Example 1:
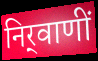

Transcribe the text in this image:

निर्वाणीं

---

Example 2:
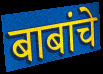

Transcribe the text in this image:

बाबांचे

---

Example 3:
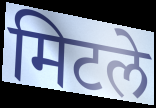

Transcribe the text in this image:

मिटले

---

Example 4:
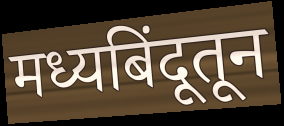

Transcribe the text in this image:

मध्यबिंदूतून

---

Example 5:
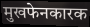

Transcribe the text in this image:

मुखफेनकारक